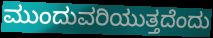
ಮುಂದುವರಿಯುತ್ತದೆಂದು